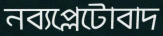
নব্যপ্লেটোবাদ